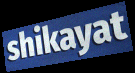
shikayat